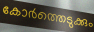
കോർത്തെടുക്കും